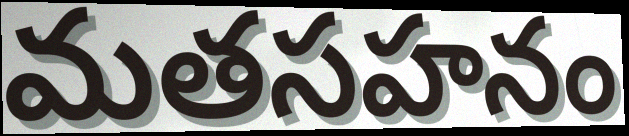
మతసహనం